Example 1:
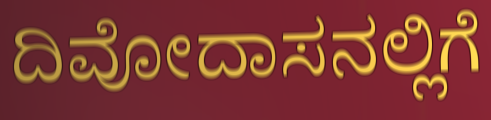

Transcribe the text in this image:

ದಿವೋದಾಸನಲ್ಲಿಗೆ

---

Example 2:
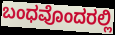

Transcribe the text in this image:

ಬಂಧವೊಂದರಲ್ಲಿ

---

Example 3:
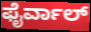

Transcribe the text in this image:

ಫೈರ್ವಾಲ್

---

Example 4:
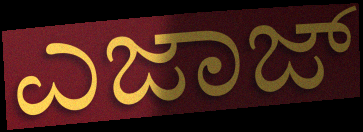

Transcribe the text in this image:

ಎಜಾಜ್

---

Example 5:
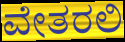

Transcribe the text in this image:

ವೇತರಲಿ